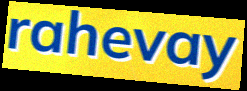
rahevay